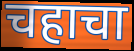
चहाचा